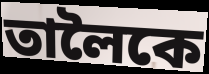
তালৈকে